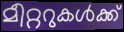
മീറ്ററുകൾക്ക്